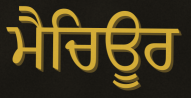
ਮੈਚਿਊਰ